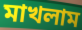
মাখলাম